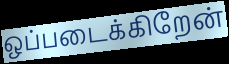
ஒப்படைக்கிறேன்